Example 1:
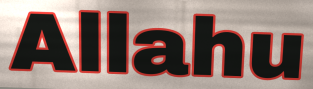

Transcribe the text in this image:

Allahu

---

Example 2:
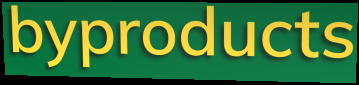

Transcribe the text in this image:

byproducts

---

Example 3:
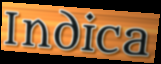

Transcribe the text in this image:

Indica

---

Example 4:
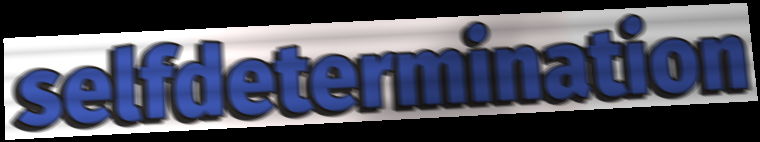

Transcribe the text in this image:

selfdetermination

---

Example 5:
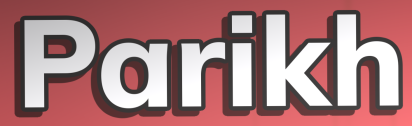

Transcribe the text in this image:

Parikh